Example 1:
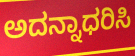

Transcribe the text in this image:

ಅದನ್ನಾಧರಿಸಿ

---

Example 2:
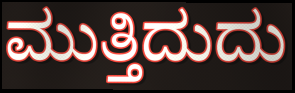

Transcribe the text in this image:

ಮುತ್ತಿದುದು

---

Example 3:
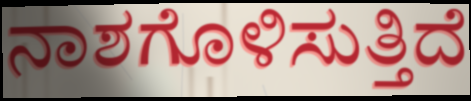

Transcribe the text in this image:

ನಾಶಗೊಳಿಸುತ್ತಿದೆ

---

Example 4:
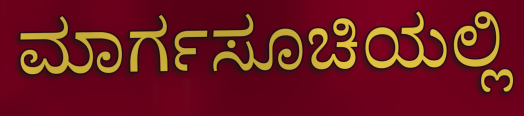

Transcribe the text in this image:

ಮಾರ್ಗಸೂಚಿಯಲ್ಲಿ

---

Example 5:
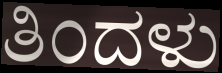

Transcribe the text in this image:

ತಿಂದಳು